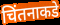
चिंतनाकडे